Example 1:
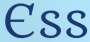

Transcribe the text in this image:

Ess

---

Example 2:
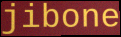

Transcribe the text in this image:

jibone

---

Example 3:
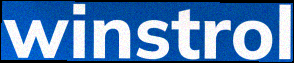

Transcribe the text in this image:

winstrol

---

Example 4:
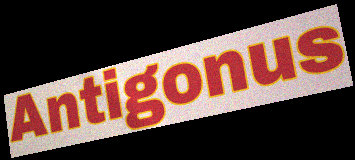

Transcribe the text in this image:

Antigonus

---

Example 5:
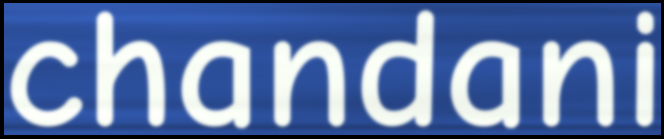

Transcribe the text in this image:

chandani